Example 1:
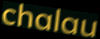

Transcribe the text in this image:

chalau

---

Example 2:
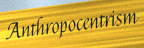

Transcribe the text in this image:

Anthropocentrism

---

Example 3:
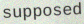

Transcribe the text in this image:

supposed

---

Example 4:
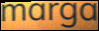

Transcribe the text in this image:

marga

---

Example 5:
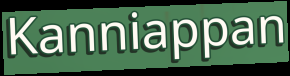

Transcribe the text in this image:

Kanniappan